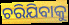
ଚରିଯିବାକୁ